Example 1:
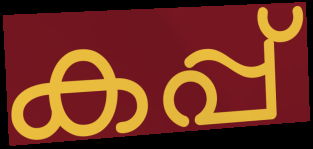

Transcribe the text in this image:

കപ്പ്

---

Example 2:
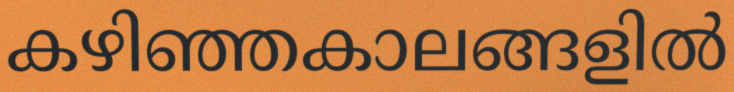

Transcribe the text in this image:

കഴിഞ്ഞകാലങ്ങളിൽ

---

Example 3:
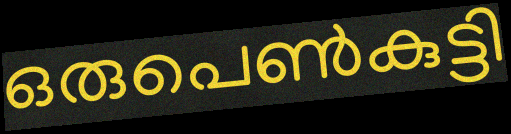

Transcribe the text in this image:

ഒരുപെൺകുട്ടി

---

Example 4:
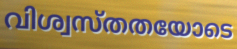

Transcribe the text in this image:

വിശ്വസ്തതയോടെ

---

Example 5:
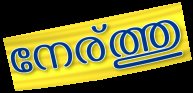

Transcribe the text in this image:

നേര്ത്തു